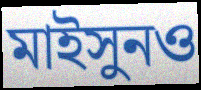
মাইসুনও